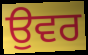
ਉਵਰ